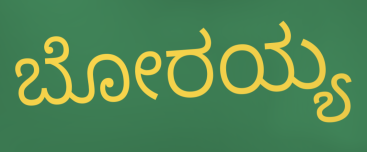
ಬೋರಯ್ಯ